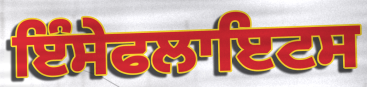
ਇੰਸੇਫਲਾਇਟਸ